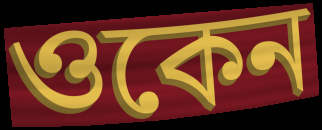
ওকেন